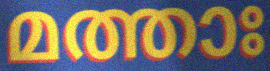
മത്താഃ